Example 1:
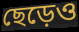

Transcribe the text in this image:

ছেড়েও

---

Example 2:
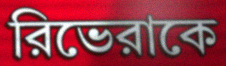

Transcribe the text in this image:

রিভেরাকে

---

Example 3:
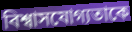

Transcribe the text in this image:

বিশ্বাসযোগ্যতাকে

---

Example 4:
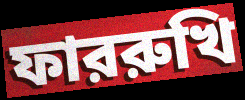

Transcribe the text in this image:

ফাররুখি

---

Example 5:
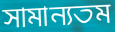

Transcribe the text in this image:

সামান্যতম